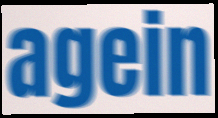
agein